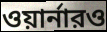
ওয়ার্নারও